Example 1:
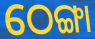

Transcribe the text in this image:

ଠେଙ୍ଗା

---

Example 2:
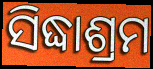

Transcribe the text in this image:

ସିଦ୍ଧାଶ୍ରମ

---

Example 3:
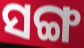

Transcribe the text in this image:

ସଙ୍ଗ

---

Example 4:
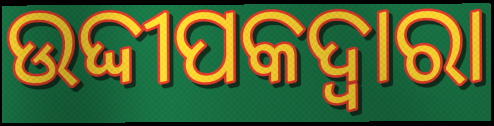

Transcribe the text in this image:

ଉଦ୍ଦୀପକଦ୍ବାରା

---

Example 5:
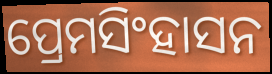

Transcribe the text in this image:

ପ୍ରେମସିଂହାସନ